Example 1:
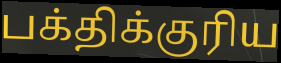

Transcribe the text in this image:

பக்திக்குரிய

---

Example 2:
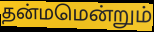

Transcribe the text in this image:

தன்மமென்றும்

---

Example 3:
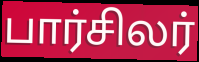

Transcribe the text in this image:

பார்சிலர்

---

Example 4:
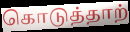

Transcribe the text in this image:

கொடுத்தாற்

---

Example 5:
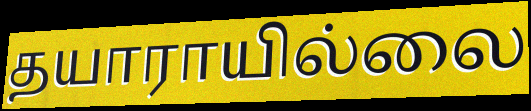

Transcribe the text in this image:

தயாராயில்லை